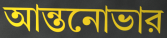
আন্তনোভার